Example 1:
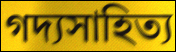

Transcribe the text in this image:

গদ্যসাহিত্য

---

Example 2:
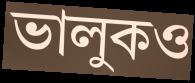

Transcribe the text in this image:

ভালুকও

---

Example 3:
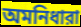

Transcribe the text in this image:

অমনিধারা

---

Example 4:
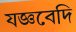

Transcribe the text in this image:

যজ্ঞবেদি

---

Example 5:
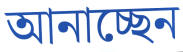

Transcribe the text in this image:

আনাচ্ছেন